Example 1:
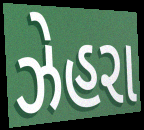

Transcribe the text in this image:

ઝેહરા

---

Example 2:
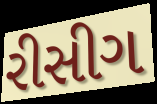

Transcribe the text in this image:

રીસીગ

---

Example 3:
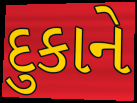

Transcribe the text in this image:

દુકાને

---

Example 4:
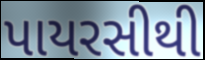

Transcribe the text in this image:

પાયરસીથી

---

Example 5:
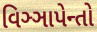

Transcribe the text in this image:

વિઞ્ઞાપેન્તો